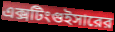
এক্সটিংগুইসারের